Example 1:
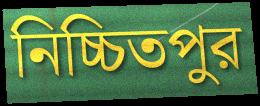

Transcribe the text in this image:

নিচ্চিতপুর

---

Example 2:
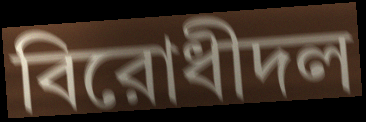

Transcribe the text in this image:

বিরোধীদল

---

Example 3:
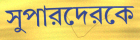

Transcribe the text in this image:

সুপারদেরকে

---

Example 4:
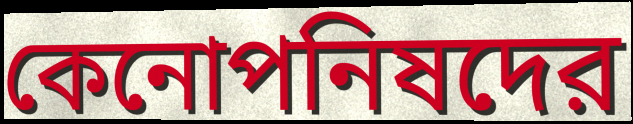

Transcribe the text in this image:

কেনোপনিষদের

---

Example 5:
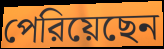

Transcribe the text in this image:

পেরিয়েছেন